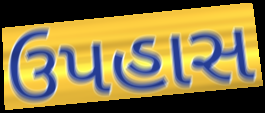
ઉપહાસ